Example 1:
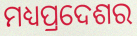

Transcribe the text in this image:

ମଧ୍ଯପ୍ରଦେଶର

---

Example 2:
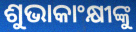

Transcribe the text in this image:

ଶୁଭାକାଂକ୍ଷୀଙ୍କୁ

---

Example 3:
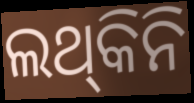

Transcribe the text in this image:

ଲଥ୍‍କିନି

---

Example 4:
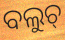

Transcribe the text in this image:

ବଲୁଚ୍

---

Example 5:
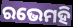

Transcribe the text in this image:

ରଭେମହି